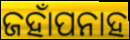
ଜହାଁପନାହ